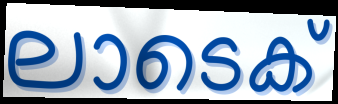
ലാടെക്